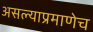
असल्याप्रमाणेच